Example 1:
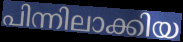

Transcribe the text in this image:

പിന്നിലാക്കിയ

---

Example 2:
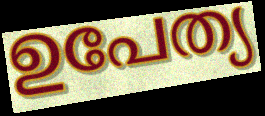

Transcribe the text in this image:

ഉപേത്യ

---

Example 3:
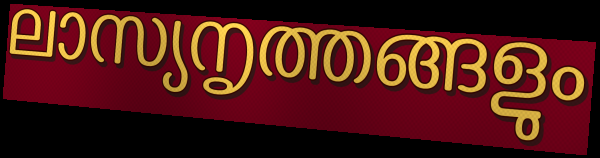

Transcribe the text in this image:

ലാസ്യനൃത്തങ്ങളും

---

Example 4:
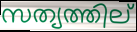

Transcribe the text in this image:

സത്യത്തില്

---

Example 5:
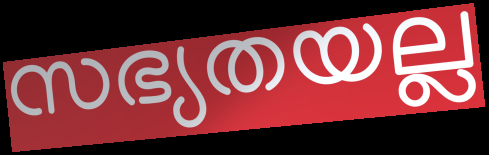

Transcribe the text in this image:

സഭ്യതയല്ല